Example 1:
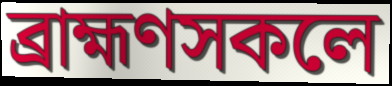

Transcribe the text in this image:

ব্ৰাহ্মণসকলে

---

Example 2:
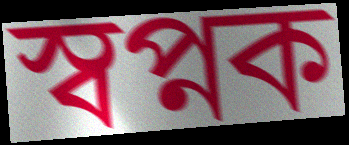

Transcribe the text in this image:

স্বপ্নক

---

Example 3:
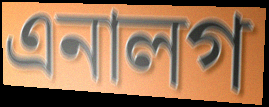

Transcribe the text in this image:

এনালগ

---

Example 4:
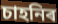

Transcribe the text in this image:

চাহনিৰ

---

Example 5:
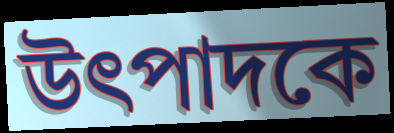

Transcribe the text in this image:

উৎপাদকে